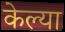
केल्या